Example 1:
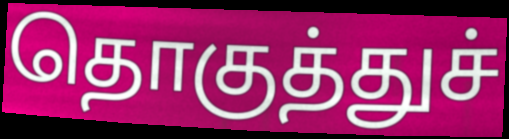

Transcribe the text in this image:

தொகுத்துச்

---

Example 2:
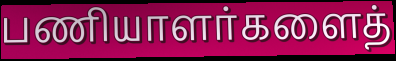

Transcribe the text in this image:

பணியாளர்களைத்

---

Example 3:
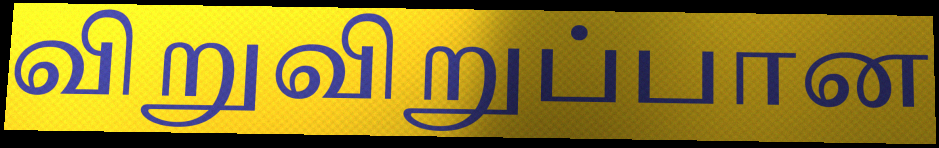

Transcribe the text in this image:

விறுவிறுப்பான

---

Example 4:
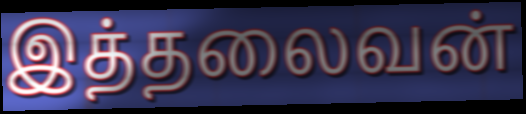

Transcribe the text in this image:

இத்தலைவன்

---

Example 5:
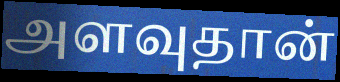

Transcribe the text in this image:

அளவுதான்